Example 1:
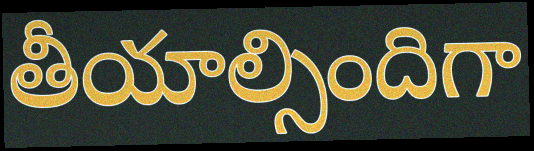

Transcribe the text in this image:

తీయాల్సిందిగా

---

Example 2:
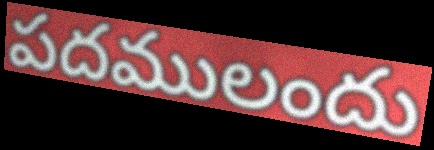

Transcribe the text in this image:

పదములందు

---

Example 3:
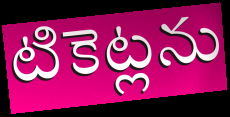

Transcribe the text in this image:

టికెట్లను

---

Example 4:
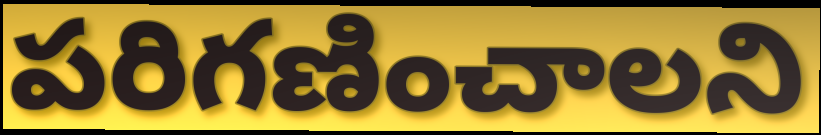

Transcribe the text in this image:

పరిగణించాలని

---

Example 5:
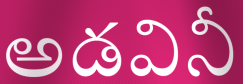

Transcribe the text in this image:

అడవినీ